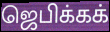
ஜெபிக்கக்